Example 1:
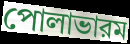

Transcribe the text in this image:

পোলাভারম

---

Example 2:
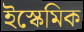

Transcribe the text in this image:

ইস্কেমিক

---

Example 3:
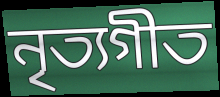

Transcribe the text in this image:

নৃত্যগীত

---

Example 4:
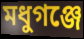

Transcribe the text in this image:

মধুগঞ্জে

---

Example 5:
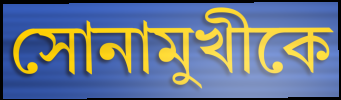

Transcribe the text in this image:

সোনামুখীকে